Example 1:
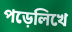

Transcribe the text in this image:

পড়েলিখে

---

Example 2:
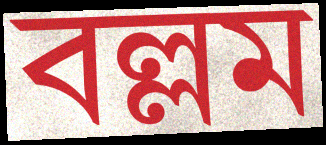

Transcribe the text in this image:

বল্লম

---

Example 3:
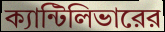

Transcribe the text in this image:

ক্যান্টিলিভারের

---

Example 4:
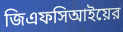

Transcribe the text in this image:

জিএফসিআইয়ের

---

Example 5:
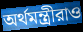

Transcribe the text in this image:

অর্থমন্ত্রীরাও